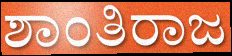
ಶಾಂತಿರಾಜ